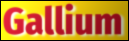
Gallium